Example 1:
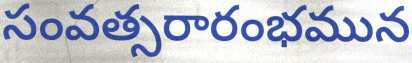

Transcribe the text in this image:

సంవత్సరారంభమున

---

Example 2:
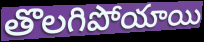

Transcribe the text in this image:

తొలగిపోయాయి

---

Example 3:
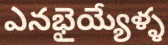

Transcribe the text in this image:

ఎనభైయ్యేళ్ళ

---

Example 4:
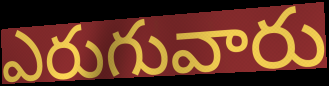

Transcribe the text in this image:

ఎరుగువారు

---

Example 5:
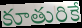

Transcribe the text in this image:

కూతురికే